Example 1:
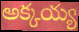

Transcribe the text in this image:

అక్కయ్య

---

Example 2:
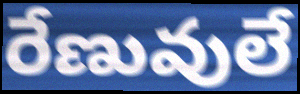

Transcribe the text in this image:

రేణువులే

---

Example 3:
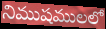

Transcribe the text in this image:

నిముషములలో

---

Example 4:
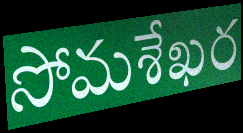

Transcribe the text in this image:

సోమశేఖర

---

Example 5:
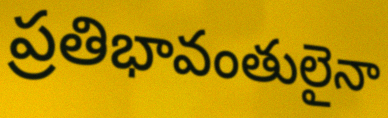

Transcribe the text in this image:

ప్రతిభావంతులైనా